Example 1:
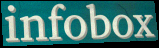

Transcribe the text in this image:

infobox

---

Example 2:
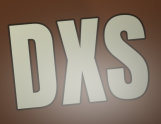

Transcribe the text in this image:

DXS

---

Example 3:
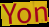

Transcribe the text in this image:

Yon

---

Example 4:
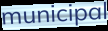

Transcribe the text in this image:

municipal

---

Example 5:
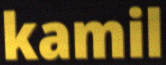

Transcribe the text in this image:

kamil